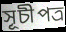
সূচীপত্র